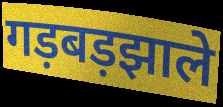
गड़बड़झाले